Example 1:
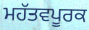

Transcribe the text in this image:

ਮਹੱਤਵਪੂਰਕ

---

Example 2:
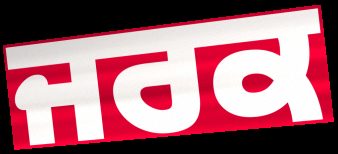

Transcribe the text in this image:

ਜਰਕ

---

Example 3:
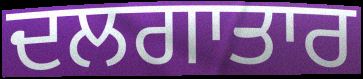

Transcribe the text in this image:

ਦਲਗਾਤਾਰ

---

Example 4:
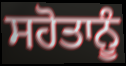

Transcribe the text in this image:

ਸਹੋਤਾਨੂੰ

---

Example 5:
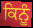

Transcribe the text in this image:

ਕਿਨੂੰ